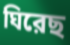
ঘিরেছ